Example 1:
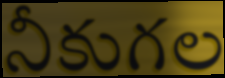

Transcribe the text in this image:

నీకుగల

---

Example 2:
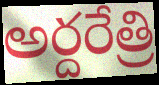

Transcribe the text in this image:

అర్దరేత్రి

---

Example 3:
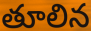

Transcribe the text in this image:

తూలిన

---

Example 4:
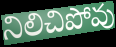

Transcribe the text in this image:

నిలిచిపోవు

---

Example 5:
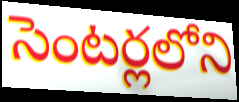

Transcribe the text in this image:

సెంటర్లలోని